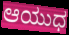
ಆಯುಧ